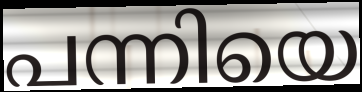
പന്നിയെ